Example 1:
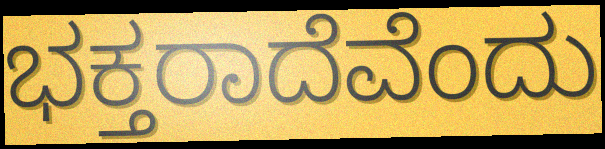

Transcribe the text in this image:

ಭಕ್ತರಾದೆವೆಂದು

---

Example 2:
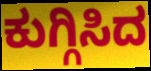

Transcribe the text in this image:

ಕುಗ್ಗಿಸಿದ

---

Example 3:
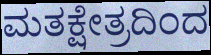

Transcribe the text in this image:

ಮತಕ್ಷೇತ್ರದಿಂದ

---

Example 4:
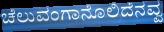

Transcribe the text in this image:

ಚೆಲುವಂಗಾನೊಲಿದೆನವ್ವ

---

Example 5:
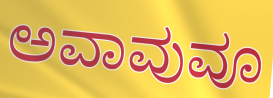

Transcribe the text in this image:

ಅವಾವುವೂ